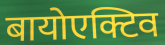
बायोएक्टिव